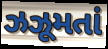
ઝઝૂમતાં